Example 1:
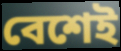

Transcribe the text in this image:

বেশেই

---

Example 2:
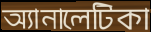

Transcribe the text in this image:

অ্যানালেটিকা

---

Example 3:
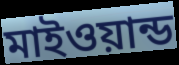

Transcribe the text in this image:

মাইওয়ান্ড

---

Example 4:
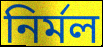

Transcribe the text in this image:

নির্মল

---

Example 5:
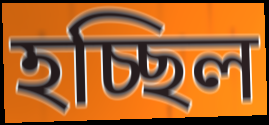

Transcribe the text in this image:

হচ্ছিল